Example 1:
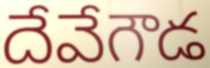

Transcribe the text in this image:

దేవేగౌడ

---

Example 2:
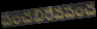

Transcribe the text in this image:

పంచభిరేవపంచ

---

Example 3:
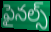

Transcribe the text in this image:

ఫైనల్స్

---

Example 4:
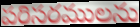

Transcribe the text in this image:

పరిసరములను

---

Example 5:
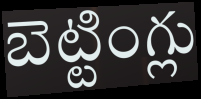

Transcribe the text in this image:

బెట్టింగ్లు